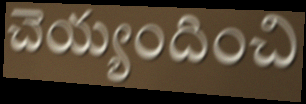
చెయ్యందించి